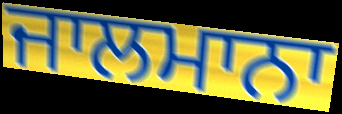
ਜਾਲਮਾਨਾ